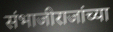
संभाजीराजांच्या